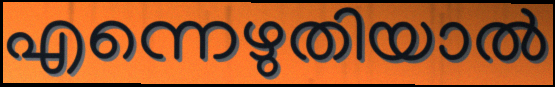
എന്നെഴുതിയാൽ